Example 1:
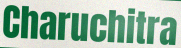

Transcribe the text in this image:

Charuchitra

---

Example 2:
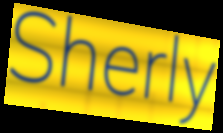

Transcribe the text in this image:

Sherly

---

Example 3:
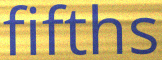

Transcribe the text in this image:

fifths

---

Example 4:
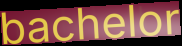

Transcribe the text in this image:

bachelor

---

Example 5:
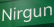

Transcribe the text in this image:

Nirgun